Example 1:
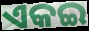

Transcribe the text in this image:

ଏକଇ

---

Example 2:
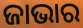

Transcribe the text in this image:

ଜାଭାର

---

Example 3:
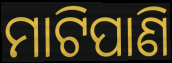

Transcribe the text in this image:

ମାଟିପାଣି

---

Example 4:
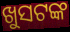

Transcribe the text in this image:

ଖୁସଟଙ୍କ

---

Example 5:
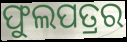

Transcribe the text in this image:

ଫୁଲପତ୍ରର